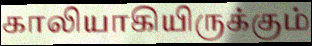
காலியாகியிருக்கும்